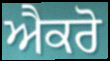
ਐਕਰੋ